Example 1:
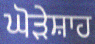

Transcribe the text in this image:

ਘੋੜੇਸ਼ਾਹ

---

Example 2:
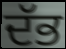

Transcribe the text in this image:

ਦੱਭ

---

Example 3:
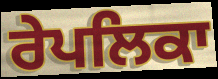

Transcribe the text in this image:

ਰੇਪਲਿਕਾ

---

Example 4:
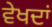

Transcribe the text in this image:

ਵੇਖਦਾਂ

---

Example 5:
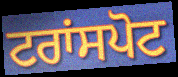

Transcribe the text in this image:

ਟਰਾਂਸਪੋਟ